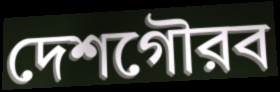
দেশগৌরব